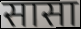
सासा